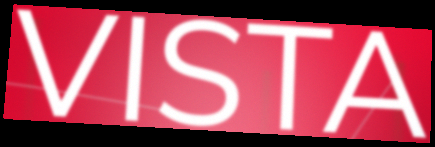
VISTA